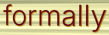
formally